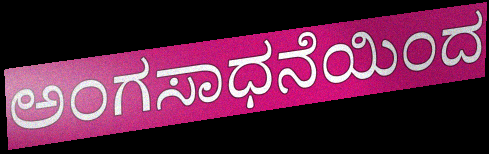
ಅಂಗಸಾಧನೆಯಿಂದ